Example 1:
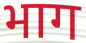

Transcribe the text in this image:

भाग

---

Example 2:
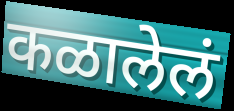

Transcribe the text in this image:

कळालेलं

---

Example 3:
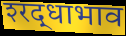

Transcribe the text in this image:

श्रद्धाभाव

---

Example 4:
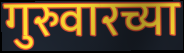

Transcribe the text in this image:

गुरुवारच्या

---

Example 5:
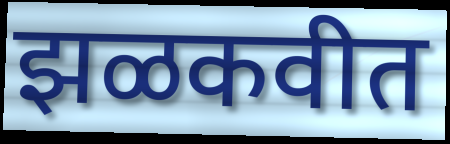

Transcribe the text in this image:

झळकवीत